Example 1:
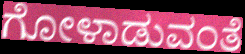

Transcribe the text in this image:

ಗೋಳಾಡುವಂತೆ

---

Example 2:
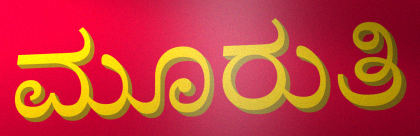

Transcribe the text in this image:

ಮೂರುತಿ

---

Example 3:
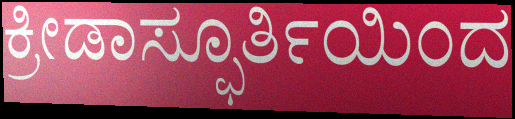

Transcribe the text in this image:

ಕ್ರೀಡಾಸ್ಫೂರ್ತಿಯಿಂದ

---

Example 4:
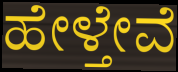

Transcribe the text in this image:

ಹೇಳ್ತೇವೆ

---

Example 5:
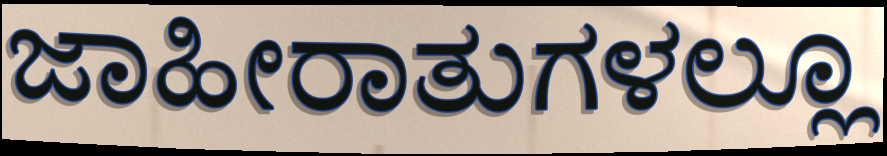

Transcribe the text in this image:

ಜಾಹೀರಾತುಗಳಲ್ಲೂ